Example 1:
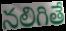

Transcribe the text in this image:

నలిగితే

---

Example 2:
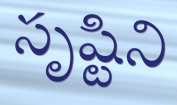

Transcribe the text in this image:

సృష్టిని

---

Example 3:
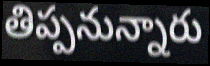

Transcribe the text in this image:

తిప్పనున్నారు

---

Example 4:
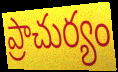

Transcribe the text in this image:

ప్రాచుర్యం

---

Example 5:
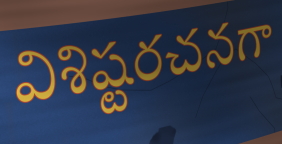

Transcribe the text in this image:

విశిష్టరచనగా